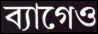
ব্যাগেও